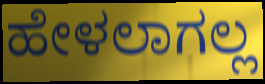
ಹೇಳಲಾಗಲ್ಲ